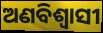
ଅଣବିଶ୍ୱାସୀ